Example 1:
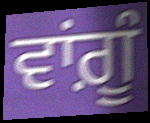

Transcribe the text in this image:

ਵਾਂਗ਼ੂੰ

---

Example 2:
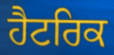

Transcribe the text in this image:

ਹੈਟਰਿਕ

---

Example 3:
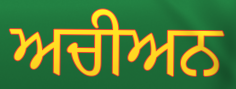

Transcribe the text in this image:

ਅਚੀਅਨ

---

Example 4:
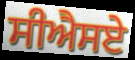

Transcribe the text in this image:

ਸੀਐਸਏ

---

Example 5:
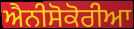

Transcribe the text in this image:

ਐਨੀਸੋਕੋਰੀਆ